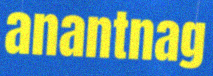
anantnag